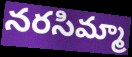
నరసిమ్మా